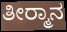
ತೀರ‍್ಮಾನ